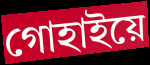
গোহাইয়ে